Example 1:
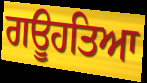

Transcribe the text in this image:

ਗਊਹਤਿਆ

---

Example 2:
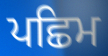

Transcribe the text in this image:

ਪਛਿਮ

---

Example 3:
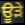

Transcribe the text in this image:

ਊੜੇ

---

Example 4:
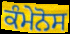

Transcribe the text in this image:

ਕੰਮੇਨੋਸ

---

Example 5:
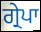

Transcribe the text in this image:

ਗ੍ਰੇਪਾ